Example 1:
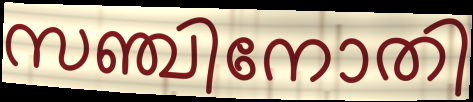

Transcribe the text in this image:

സഞ്ചിനോതി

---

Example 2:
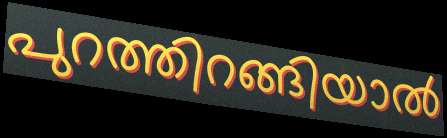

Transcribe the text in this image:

പുറത്തിറങ്ങിയാൽ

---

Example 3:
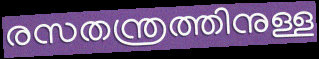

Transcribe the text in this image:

രസതന്ത്രത്തിനുള്ള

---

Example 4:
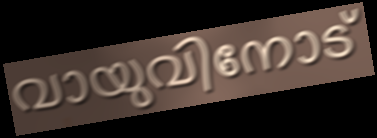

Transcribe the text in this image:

വായുവിനോട്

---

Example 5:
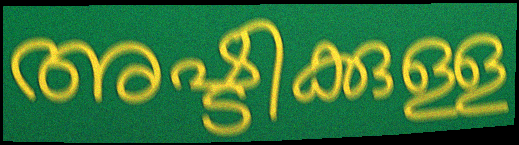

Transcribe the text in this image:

അഷ്ടിക്കുള്ള